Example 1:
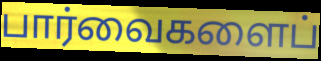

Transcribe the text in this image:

பார்வைகளைப்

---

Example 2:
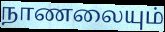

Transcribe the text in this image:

நாணலையும்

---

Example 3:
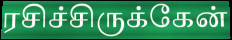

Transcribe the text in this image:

ரசிச்சிருக்கேன்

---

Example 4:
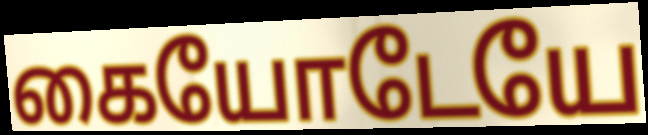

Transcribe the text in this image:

கையோடேயே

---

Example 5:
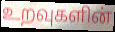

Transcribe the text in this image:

உறவுகளின்